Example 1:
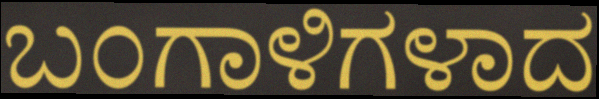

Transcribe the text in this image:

ಬಂಗಾಳಿಗಳಾದ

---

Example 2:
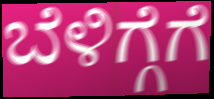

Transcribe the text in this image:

ಬೆಳಿಗ್ಗೆಗೆ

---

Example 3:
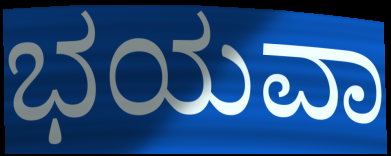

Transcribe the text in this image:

ಭಯವಾ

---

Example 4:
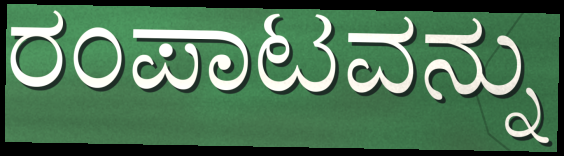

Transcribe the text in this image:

ರಂಪಾಟವನ್ನು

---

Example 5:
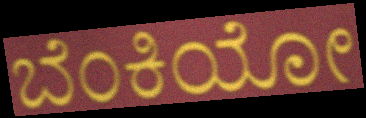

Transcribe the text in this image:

ಬೆಂಕಿಯೋ